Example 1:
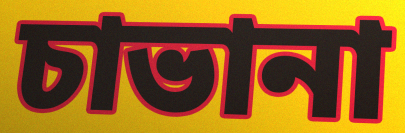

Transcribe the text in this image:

চাভানা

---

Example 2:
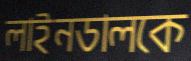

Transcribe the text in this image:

লাইনডালকে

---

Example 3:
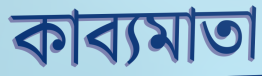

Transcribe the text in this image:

কাব্যমাতা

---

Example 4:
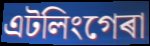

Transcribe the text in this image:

এটলিংগেৰা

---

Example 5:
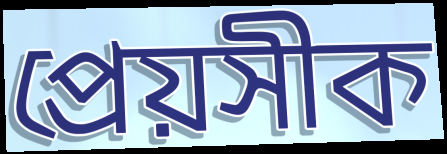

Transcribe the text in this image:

প্ৰেয়সীক